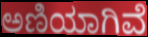
ಅಣಿಯಾಗಿವೆ